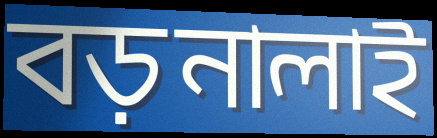
বড়নালাই